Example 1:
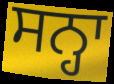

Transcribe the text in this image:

ਸਨ੍ਹਾ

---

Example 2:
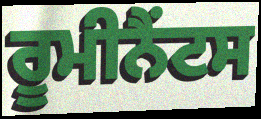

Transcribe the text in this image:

ਰੂਮੀਨੈਂਟਸ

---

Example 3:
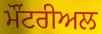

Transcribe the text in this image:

ਮੌਂਟਰੀਅਲ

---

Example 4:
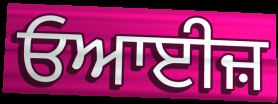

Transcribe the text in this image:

ਓਆਈਜ਼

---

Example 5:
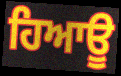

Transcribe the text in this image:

ਹਿਆਊ